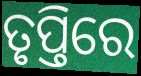
ତୃପ୍ତିରେ